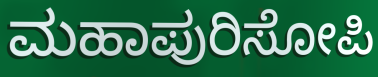
ಮಹಾಪುರಿಸೋಪಿ